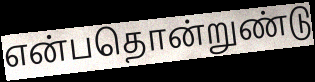
என்பதொன்றுண்டு